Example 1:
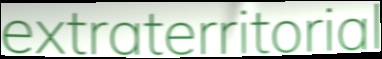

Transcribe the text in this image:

extraterritorial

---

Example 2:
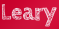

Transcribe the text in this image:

Leary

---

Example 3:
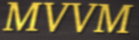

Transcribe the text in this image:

MVVM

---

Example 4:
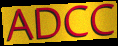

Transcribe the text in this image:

ADCC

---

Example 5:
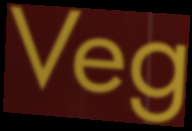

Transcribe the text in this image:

Veg